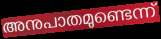
അനുപാതമുണ്ടെന്ന്